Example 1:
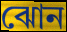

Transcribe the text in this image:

ঝোন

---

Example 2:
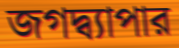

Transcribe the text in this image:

জগদ্ব্যাপার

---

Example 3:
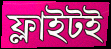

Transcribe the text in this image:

ফ্লাইটই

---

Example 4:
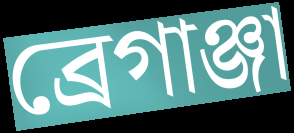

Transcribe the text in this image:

ব্রেগাঞ্জা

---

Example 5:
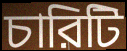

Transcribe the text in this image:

চারিটি